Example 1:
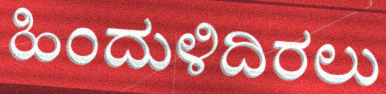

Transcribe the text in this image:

ಹಿಂದುಳಿದಿರಲು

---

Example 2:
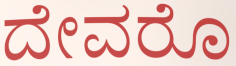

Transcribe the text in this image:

ದೇವರೊ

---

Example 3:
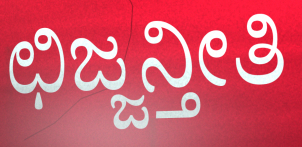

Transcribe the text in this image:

ಛಿಜ್ಜನ್ತೀತಿ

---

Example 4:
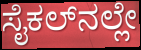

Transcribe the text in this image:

ಸೈಕಲ್‌ನಲ್ಲೇ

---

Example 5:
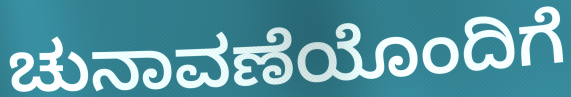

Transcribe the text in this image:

ಚುನಾವಣೆಯೊಂದಿಗೆ